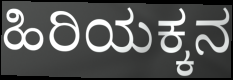
ಹಿರಿಯಕ್ಕನ